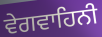
ਵੇਗਵਾਹਿਨੀ